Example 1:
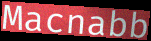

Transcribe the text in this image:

Macnabb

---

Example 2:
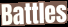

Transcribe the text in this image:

Battles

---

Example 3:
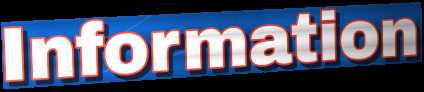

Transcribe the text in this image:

Information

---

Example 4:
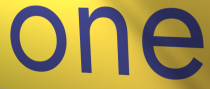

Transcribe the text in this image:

one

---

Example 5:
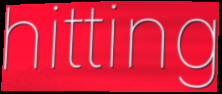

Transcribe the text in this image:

hitting